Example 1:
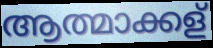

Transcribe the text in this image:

ആത്മാക്കള്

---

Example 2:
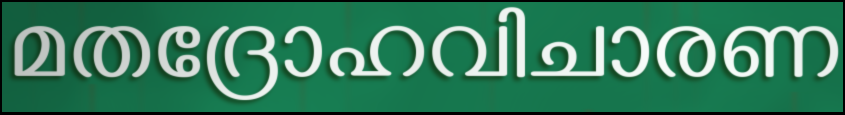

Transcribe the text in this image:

മതദ്രോഹവിചാരണ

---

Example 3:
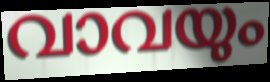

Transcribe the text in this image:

വാവയും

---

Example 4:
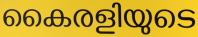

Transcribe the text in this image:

കൈരളിയുടെ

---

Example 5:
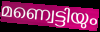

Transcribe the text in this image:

മണ്വെട്ടിയും